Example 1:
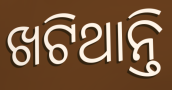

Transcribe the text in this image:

ଖଟିଥାନ୍ତି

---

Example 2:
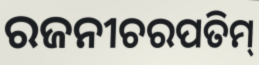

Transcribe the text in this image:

ରଜନୀଚରପତିମ୍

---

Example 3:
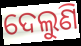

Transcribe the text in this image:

ଦେଲୁଣି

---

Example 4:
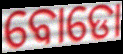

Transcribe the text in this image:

ବୋଡୋ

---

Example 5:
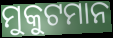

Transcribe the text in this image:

ମୁକୁଟମାନ